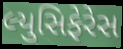
લ્યુસિફેરેસ